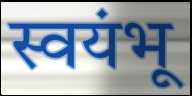
स्वयंभू